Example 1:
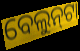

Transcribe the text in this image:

ବେଲୁନ୍‌ଟା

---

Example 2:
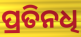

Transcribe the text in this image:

ପ୍ରତିନଧି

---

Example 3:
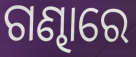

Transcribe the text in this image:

ଗଣ୍ଢାରେ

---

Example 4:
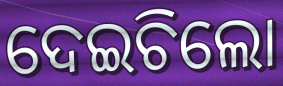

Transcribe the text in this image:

ଦେଇଚିଲୋ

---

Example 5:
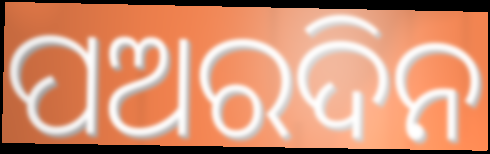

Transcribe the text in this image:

ପଅରଦିନ